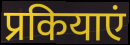
प्रकियाएं